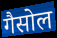
गैसोल